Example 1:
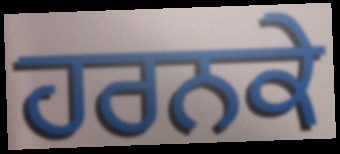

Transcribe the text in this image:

ਹਰਨਕੇ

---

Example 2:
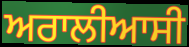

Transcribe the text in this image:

ਅਰਾਲੀਆਸੀ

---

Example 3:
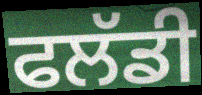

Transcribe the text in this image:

ਫਲੱਡੀ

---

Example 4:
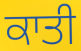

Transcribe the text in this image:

ਕਾਤੀ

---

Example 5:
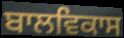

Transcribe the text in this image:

ਬਾਲਵਿਕਾਸ